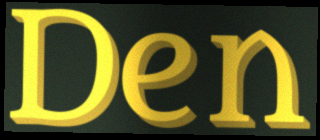
Den